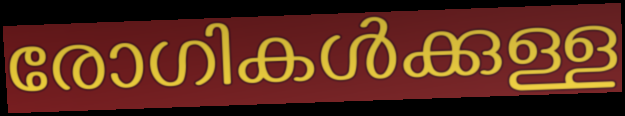
രോഗികൾക്കുള്ള